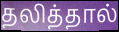
தலித்தால்